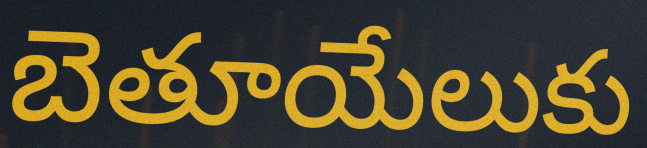
బెతూయేలుకు